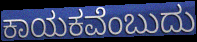
ಕಾಯಕವೆಂಬುದು